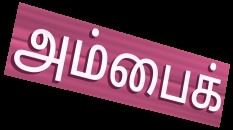
அம்பைக்